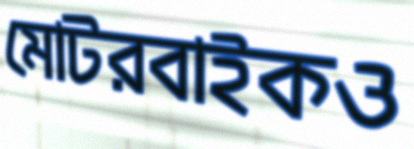
মোটরবাইকও